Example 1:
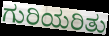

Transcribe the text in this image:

ಗುರಿಯರಿತು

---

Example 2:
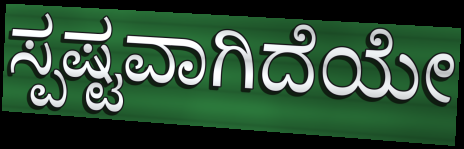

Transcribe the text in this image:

ಸ್ಪಷ್ಟವಾಗಿದೆಯೇ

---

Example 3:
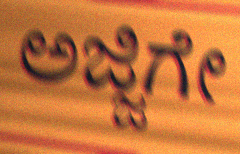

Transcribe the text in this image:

ಅಜ್ಜಿಗೇ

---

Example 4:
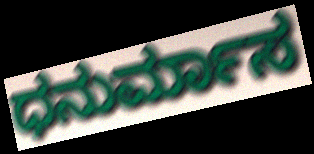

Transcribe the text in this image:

ಧನುರ್ಮಾಸ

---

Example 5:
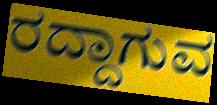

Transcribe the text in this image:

ರದ್ದಾಗುವ